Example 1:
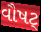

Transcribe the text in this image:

વૌષટ્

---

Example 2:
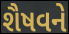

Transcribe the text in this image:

શૈષવને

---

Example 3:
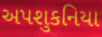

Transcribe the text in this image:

અપશુકનિયા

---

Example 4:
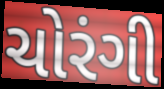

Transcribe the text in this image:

ચોરંગી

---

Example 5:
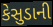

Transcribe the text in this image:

કેસુડાની